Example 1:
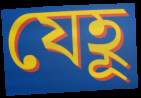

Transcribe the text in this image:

যেহূ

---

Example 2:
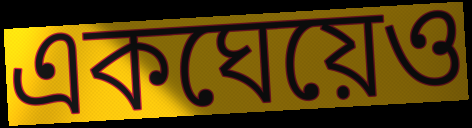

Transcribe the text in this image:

একঘেয়েও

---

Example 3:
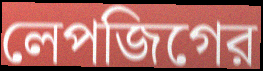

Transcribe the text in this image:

লেপজিগের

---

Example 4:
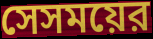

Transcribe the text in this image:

সেসময়ের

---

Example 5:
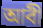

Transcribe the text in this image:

আবী